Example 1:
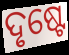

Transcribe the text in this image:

ଦୃଷ୍ଟେ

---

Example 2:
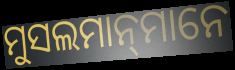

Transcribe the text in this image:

ମୁସଲମାନ୍‌ମାନେ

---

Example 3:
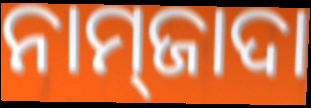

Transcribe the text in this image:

ନାମ୍‍ଜାଦା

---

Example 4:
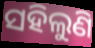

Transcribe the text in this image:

ସହିଲୁଣି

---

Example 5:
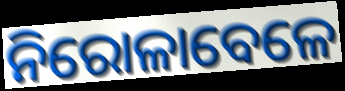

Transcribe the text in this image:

ନିରୋଳାବେଳେ